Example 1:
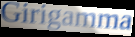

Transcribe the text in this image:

Girigamma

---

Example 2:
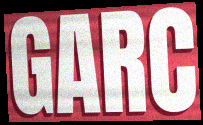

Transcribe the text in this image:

GARC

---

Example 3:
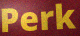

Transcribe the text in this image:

Perk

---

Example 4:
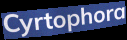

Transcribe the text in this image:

Cyrtophora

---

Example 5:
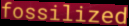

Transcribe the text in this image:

fossilized